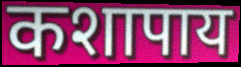
कशापाय